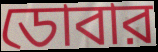
ডোবার